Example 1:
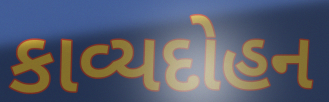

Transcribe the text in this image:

કાવ્યદોહન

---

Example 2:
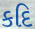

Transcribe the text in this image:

કદિ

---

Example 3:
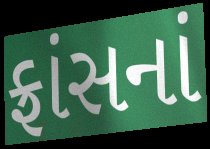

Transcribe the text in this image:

ફ્રાંસનાં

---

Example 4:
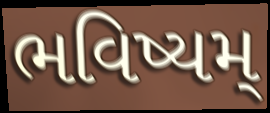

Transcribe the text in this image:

ભવિષ્યમ્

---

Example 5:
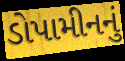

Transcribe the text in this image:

ડોપામીનનું